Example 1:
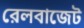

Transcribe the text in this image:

রেলবাজেট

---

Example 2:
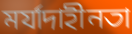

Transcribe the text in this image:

মর্যাদাহীনতা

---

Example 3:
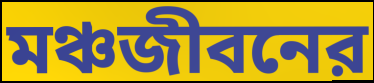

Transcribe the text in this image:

মঞ্চজীবনের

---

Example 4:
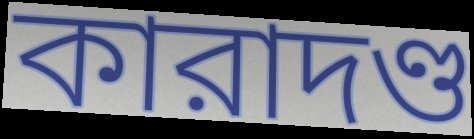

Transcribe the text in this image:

কারাদণ্ড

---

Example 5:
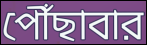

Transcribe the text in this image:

পৌঁছাবার